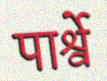
पार्श्वे